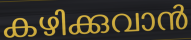
കഴിക്കുവാൻ